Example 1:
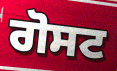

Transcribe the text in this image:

ਗੋਸਟ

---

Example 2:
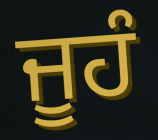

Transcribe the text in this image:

ਜੂਹੰ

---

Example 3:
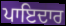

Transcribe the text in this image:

ਪਾਇਦਾਰ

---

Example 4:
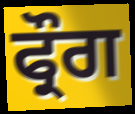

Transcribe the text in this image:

ਫ੍ਰੌਗ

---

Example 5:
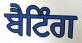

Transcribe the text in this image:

ਬੈਟਿੰਗ